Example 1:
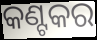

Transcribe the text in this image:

କଣ୍ଟକର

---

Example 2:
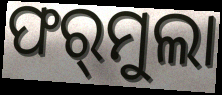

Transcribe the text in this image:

ଫର୍‌ମୁଲା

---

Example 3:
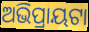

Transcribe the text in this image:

ଅଭିପ୍ରାୟଟା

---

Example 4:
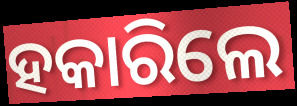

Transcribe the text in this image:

ହକାରିଲେ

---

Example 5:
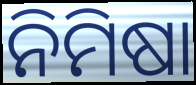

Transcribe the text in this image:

ନିମିଷା